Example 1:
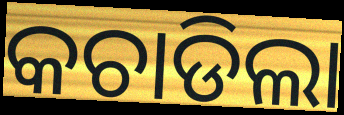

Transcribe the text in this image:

କଚାଡିଲା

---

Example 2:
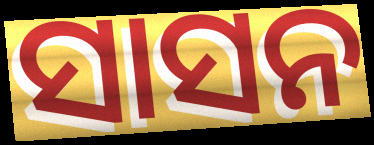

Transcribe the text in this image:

ସାସନ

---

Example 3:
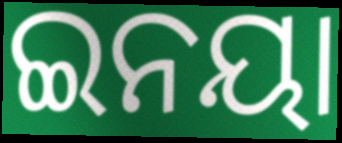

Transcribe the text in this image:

ଇନୟା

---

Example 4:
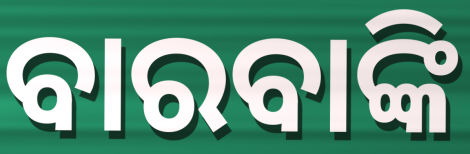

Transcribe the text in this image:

ବାରବାଙ୍କି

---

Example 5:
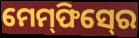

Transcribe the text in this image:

ମେମ୍‍ଫିସ୍‍ରେ